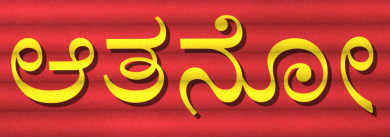
ಆತನೋ